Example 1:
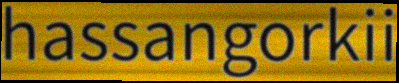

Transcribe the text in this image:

hassangorkii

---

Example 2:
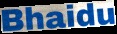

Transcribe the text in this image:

Bhaidu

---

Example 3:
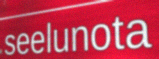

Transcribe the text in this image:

seelunota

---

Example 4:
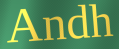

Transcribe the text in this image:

Andh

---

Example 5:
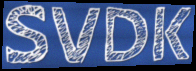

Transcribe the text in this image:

SVDK